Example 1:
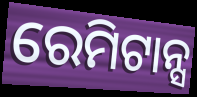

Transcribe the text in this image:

ରେମିଟାନ୍ସ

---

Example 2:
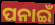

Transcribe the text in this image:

ପନାଇଁ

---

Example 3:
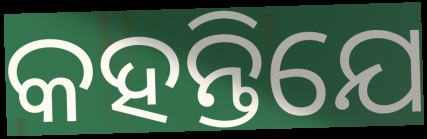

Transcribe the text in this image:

କହନ୍ତିଯେ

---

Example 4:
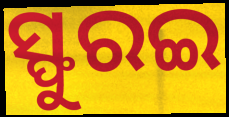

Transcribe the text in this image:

ସ୍ଫୁରଇ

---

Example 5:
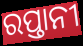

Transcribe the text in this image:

ରପ୍ତାନୀ